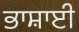
ਭਾਸ਼ਾਈ